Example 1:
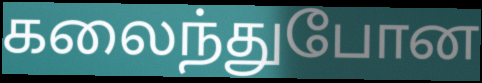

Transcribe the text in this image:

கலைந்துபோன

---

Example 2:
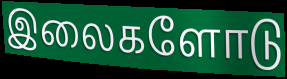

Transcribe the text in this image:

இலைகளோடு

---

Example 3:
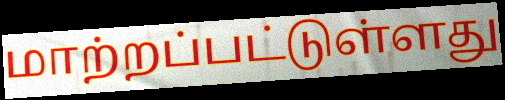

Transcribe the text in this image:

மாற்றப்பட்டுள்ளது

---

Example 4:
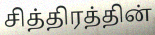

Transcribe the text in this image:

சித்திரத்தின்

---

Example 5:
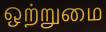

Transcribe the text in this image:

ஒற்றுமை